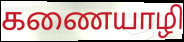
கணையாழி